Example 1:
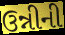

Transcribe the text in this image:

ઉન્નીની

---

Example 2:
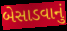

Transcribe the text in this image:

બેસાડવાનું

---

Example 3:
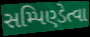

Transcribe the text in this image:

સમ્પિણ્ડેત્વા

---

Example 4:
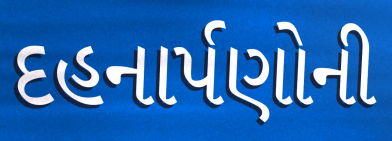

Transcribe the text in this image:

દહનાર્પણોની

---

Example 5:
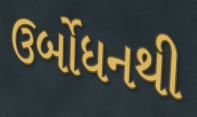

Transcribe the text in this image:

ઉર્બોધનથી